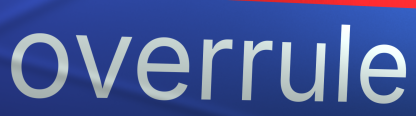
overrule